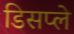
डिसप्ले